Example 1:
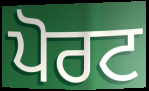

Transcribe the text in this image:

ਪੋਰਟ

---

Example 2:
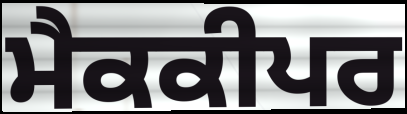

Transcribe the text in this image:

ਮੈਕਕੀਪਰ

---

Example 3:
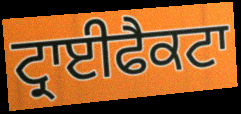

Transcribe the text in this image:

ਟ੍ਰਾਈਫੈਕਟਾ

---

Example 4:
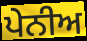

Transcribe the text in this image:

ਪੇਨੀਅ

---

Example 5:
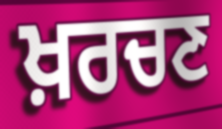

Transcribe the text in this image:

ਖ਼ਰਚਣ